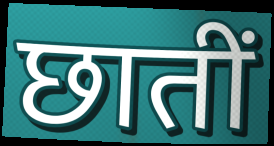
छातीं